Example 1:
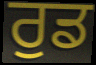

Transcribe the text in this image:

ਰੁਡ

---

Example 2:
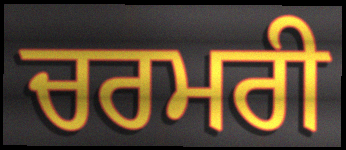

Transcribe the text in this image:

ਚਰਮਰੀ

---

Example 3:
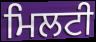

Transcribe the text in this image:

ਮਿਲਟੀ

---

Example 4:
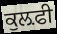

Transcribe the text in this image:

ਕੁਲ਼ਫੀ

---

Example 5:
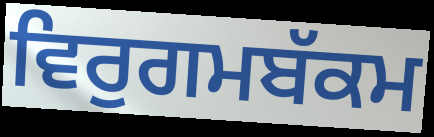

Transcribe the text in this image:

ਵਿਰੁਗਮਬੱਕਮ